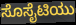
ಸೊಸೈಟಿಯು